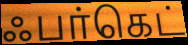
ஃபர்கெட்